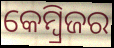
କେମ୍ୱ୍ରିଜର